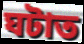
ঘটাত